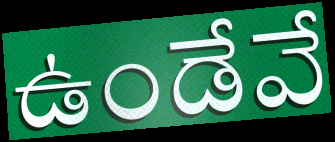
ఉండేవే